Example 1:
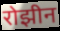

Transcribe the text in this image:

रोझीन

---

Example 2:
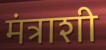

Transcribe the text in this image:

मंत्राशी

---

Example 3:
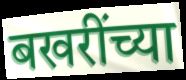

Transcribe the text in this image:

बखरींच्या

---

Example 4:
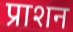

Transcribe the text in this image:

प्राशन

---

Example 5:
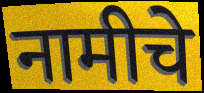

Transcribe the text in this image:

नामीचे